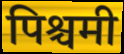
पिश्चमी